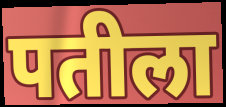
पतीला